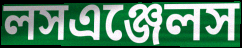
লসএঞ্জেলস